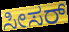
ಸೀಸರ್